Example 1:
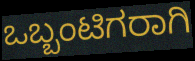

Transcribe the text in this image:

ಒಬ್ಬಂಟಿಗರಾಗಿ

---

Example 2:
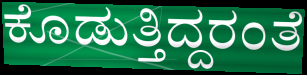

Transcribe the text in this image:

ಕೊಡುತ್ತಿದ್ದರಂತೆ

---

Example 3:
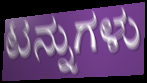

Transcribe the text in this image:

ಟನ್ನುಗಳು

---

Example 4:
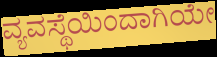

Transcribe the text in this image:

ವ್ಯವಸ್ಥೆಯಿಂದಾಗಿಯೇ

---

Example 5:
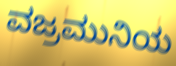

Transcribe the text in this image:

ವಜ್ರಮುನಿಯ